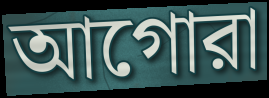
আগোরা